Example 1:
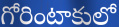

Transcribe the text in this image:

గోరింటాకులో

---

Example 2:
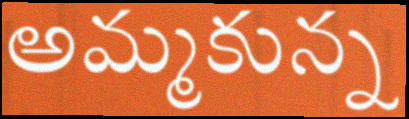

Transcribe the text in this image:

అమ్మకున్న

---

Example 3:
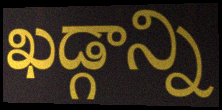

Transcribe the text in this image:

ఖడ్గాన్ని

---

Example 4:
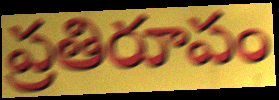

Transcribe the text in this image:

ప్రతిరూపం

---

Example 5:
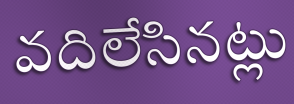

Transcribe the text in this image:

వదిలేసినట్లు